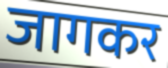
जागकर